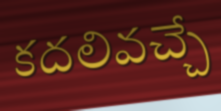
కదలివచ్చే